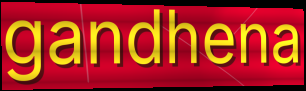
gandhena